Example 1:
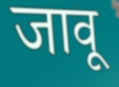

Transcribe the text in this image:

जावू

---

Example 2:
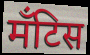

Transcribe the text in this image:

मँटिस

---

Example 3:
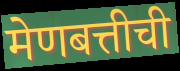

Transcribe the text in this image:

मेणबत्तीची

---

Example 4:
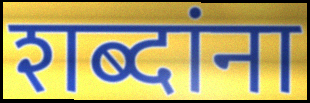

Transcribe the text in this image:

शब्दांना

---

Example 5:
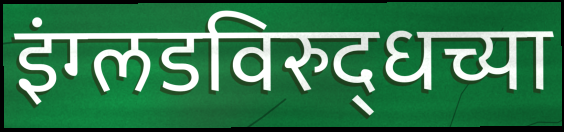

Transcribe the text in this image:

इंग्लडविरुद्धच्या